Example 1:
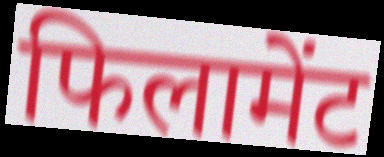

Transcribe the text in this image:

फिलामेंट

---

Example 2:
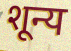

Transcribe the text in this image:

शून्य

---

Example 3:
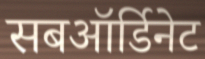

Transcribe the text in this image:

सबऑर्डिनेट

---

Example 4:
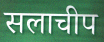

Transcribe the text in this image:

सलाचीप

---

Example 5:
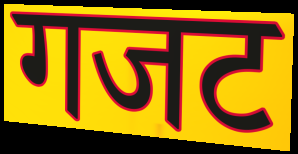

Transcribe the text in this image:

गजट